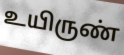
உயிருண்